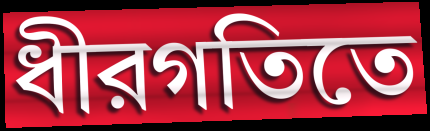
ধীরগতিতে